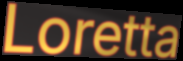
Loretta